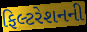
ફિલ્ટરેશનની